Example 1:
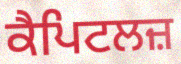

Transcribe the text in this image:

ਕੈਪਿਟਲਜ਼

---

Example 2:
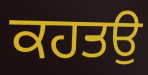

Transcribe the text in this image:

ਕਹਤਉ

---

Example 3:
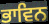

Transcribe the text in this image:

ਭਾਵਿਨ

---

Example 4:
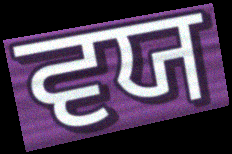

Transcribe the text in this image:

ਵਯ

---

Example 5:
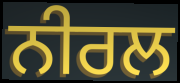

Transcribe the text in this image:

ਨੀਰਲ